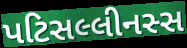
પટિસલ્લીનસ્સ